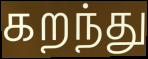
கறந்து